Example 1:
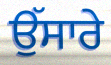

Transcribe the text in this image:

ਉੱਸਾਰੇ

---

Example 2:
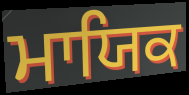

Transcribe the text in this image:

ਮਾਯਿਕ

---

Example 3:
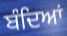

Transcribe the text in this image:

ਬੰਦਿਆਂ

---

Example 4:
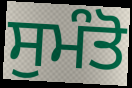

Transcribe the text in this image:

ਸੁਮੰਤੋ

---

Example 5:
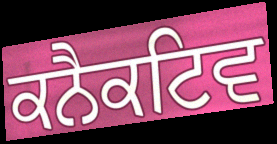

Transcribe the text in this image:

ਕਨੈਕਟਿਵ